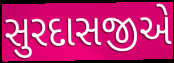
સુરદાસજીએ